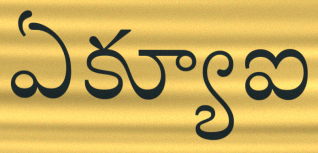
ఏక్యూఐ